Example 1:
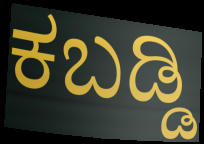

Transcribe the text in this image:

ಕಬಡ್ಡಿ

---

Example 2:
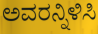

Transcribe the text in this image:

ಅವರನ್ನಿಳಿಸಿ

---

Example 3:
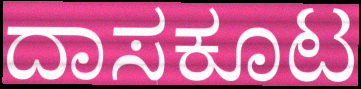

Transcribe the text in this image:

ದಾಸಕೂಟ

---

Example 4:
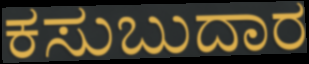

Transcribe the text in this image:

ಕಸುಬುದಾರ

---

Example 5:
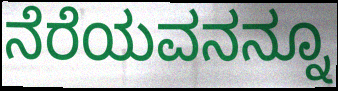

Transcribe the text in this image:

ನೆರೆಯವನನ್ನೂ